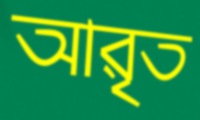
আৱৃত